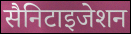
सैनिटाइजेशन